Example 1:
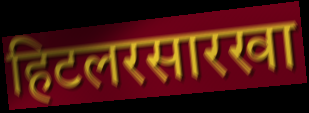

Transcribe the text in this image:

हिटलरसारखा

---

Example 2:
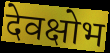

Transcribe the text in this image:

देवक्षोभ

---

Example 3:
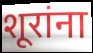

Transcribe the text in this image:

शूरांना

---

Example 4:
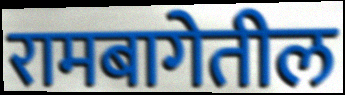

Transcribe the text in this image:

रामबागेतील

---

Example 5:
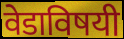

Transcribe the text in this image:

वेडाविषयी